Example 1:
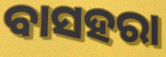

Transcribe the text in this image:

ବାସହରା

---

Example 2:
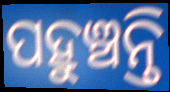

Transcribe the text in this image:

ପହୁଞ୍ଚନ୍ତି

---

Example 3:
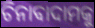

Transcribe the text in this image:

ଚିନାବାଦାମକୁ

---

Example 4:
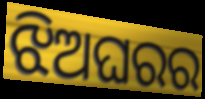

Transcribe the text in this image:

ଝିଅଘରର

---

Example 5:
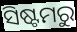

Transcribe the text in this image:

ସିଷ୍ଟମରୁ